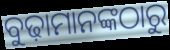
ବୁଢ଼ାମାନଙ୍କଠାରୁ